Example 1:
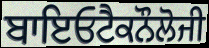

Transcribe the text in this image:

ਬਾਇਓਟੈਕਨੌਲੋਜੀ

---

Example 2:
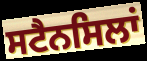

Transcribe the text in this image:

ਸਟੈਨਸਿਲਾਂ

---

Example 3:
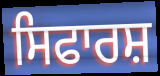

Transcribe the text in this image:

ਸਿਫਾਰਸ਼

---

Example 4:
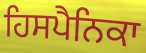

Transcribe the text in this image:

ਹਿਸਪੈਨਿਕਾ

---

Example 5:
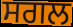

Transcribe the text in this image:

ਸਗਲ